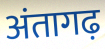
अंतागढ़